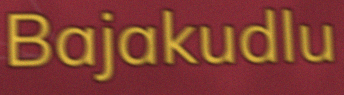
Bajakudlu